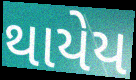
થાયેય